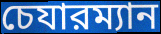
চেযারম্যান